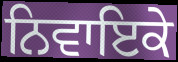
ਨਿਵਾਇਕੇ